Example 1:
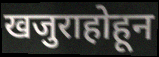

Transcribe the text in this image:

खजुराहोहून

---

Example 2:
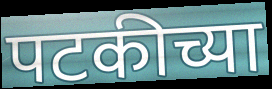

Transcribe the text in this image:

पटकीच्या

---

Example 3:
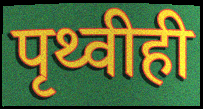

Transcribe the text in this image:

पृथ्वीही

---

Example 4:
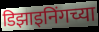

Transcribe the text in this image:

डिझाइनिंगच्या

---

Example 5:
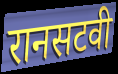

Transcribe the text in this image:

रानसटवी